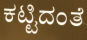
ಕಟ್ಟಿದಂತೆ